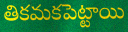
తికమకపెట్టాయి